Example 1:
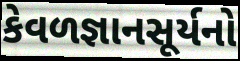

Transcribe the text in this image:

કેવળજ્ઞાનસૂર્યનો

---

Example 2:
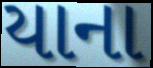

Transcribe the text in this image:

યાના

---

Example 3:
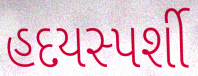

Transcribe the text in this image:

હદયસ્પર્શી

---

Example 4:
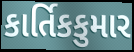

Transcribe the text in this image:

કાર્તિકકુમાર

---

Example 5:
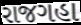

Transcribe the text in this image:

રાજગહા